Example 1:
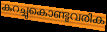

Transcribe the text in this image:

കുറച്ചുകൊണ്ടുവരിക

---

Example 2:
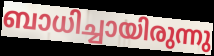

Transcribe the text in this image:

ബാധിച്ചായിരുന്നു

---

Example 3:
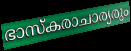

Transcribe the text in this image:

ഭാസ്കരാചാര്യരും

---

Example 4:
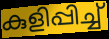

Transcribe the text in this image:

കുളിപ്പിച്ച്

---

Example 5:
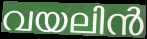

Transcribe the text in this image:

വയലിൻ